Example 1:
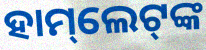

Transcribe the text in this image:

ହାମ୍‌ଲେଟ୍‌ଙ୍କ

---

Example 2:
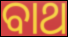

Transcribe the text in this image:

ବାଥ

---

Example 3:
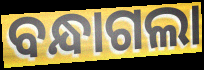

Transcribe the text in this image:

ବନ୍ଧାଗଲା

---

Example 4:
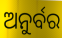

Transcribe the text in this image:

ଅନୁର୍ବର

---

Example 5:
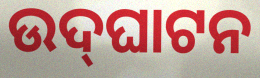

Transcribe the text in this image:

ଉଦ୍‌ଘାଟନ